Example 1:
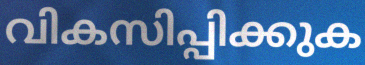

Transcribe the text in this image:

വികസിപ്പിക്കുക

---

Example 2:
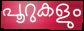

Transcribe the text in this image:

പൂറുകളും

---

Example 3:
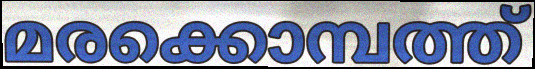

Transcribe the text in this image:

മരക്കൊമ്പത്ത്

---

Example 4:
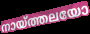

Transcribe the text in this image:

നായ്ത്തലയോ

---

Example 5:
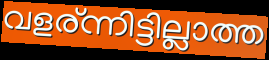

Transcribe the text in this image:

വളര്ന്നിട്ടില്ലാത്ത